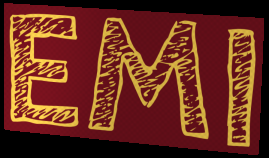
EMI